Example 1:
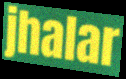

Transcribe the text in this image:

jhalar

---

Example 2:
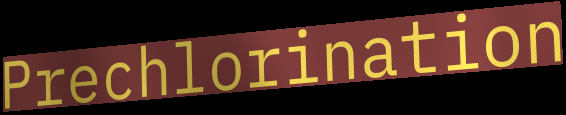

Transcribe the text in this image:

Prechlorination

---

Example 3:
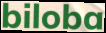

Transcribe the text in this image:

biloba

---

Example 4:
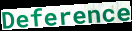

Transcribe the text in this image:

Deference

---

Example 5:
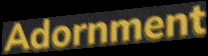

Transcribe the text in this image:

Adornment